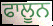
ਫਾਲੂਨ